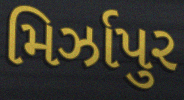
મિર્ઝાપુર